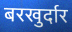
बरखुर्दार